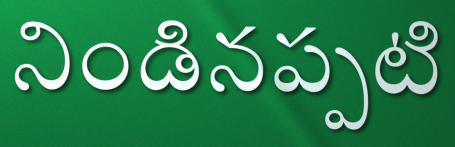
నిండినప్పటి